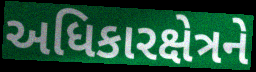
અધિકારક્ષેત્રને